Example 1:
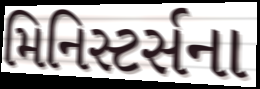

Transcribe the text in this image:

મિનિસ્ટર્સના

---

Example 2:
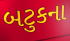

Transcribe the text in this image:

બટુકના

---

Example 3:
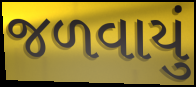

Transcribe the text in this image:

જળવાયું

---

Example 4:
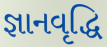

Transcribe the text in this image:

જ્ઞાનવૃદ્ધિ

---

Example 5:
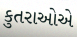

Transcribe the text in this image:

કુતરાઓએ